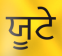
ਯੂਟੇ